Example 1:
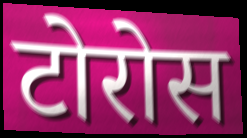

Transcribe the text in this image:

टोरोस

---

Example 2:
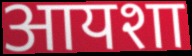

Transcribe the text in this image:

आयशा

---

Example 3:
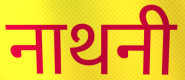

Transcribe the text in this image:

नाथनी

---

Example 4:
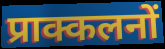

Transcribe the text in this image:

प्राक्कलनों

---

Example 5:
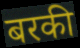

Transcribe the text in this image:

बरकी